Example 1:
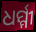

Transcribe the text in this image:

ଧର୍ମ୍ମୀ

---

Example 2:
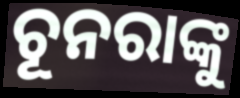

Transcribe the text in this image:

ଚୂନରାଙ୍କୁ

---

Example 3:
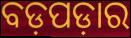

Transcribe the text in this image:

ବଡ଼ପଡ଼ାର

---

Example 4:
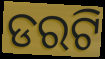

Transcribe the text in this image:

ଡରଟି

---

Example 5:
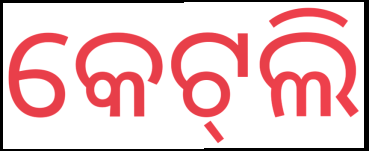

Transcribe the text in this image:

କେଟ୍‌ଲି